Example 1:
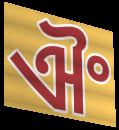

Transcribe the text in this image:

ଐଂ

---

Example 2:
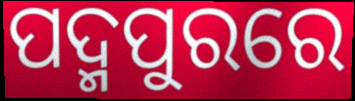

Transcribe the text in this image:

ପଦ୍ମପୁରରେ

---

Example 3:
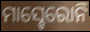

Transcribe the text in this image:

ମାସ୍ଚେରୋନି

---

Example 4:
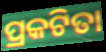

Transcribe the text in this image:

ପ୍ରକଟିତା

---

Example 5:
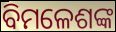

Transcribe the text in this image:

ବିମଳେଶଙ୍କ